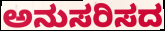
ಅನುಸರಿಸದ